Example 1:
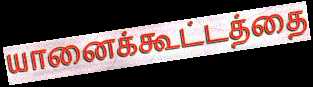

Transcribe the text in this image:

யானைக்கூட்டத்தை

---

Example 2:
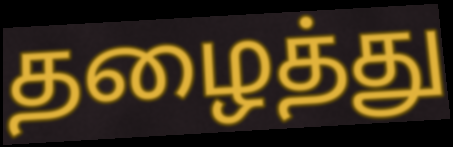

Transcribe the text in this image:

தழைத்து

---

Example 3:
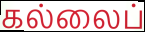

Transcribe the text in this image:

கல்லைப்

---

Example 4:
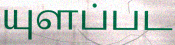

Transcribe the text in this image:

யுளப்பட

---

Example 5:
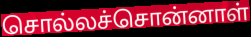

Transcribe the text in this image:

சொல்லச்சொன்னாள்